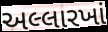
અલ્લારખાં